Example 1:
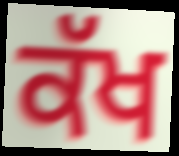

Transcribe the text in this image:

ਕੱਖ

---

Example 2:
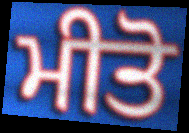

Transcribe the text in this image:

ਮੀਤੋ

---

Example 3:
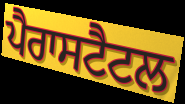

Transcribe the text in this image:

ਪੈਰਾਸਟੈਟਲ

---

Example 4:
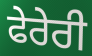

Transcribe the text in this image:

ਫੇਰੇਰੀ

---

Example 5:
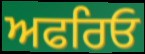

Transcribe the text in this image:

ਅਫਰਿਓ